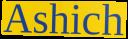
Ashich